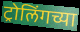
ट्रोलिंगच्या